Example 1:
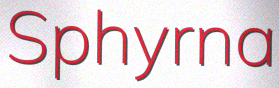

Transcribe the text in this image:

Sphyrna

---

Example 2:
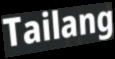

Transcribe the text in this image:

Tailang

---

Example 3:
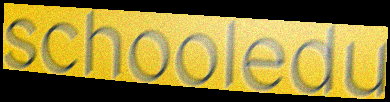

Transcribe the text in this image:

schooledu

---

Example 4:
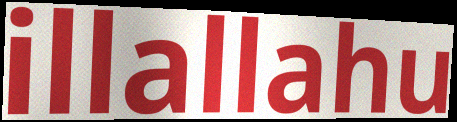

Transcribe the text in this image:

illallahu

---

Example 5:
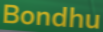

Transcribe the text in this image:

Bondhu